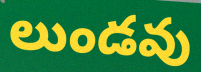
లుండవు